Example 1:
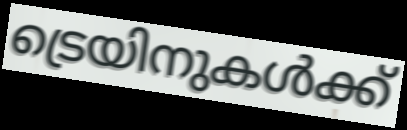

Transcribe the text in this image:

ട്രെയിനുകൾക്ക്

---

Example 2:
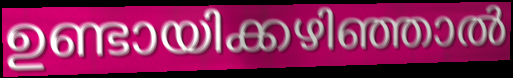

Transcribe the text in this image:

ഉണ്ടായിക്കഴിഞ്ഞാൽ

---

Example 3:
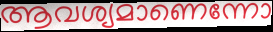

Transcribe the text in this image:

ആവശ്യമാണെന്നോ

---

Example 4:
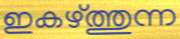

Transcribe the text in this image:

ഇകഴ്ത്തുന്ന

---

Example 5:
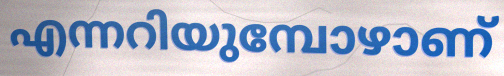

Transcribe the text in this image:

എന്നറിയുമ്പോഴാണ്